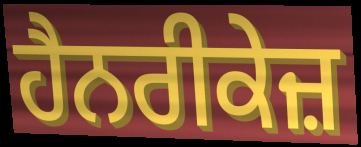
ਹੈਨਰੀਕੇਜ਼